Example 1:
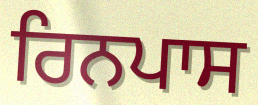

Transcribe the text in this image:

ਰਿਨਪਾਸ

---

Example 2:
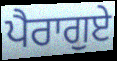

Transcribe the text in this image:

ਪੈਰਾਗੁਏ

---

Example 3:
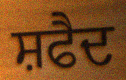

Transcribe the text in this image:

ਸ਼ਫੈਦ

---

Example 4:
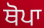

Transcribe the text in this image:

ਥੋਪਾ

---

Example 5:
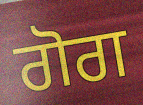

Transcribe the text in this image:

ਗੋਗ